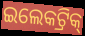
ଇଲେକଟ୍ରିକ୍